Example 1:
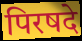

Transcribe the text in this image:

पिरषदे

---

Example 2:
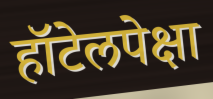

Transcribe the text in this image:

हॉटेलपेक्षा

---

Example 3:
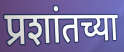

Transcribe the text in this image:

प्रशांतच्या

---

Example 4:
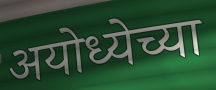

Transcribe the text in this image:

अयोध्येच्या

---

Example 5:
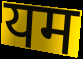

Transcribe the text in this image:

यम